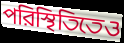
পরিস্থিতিতেও